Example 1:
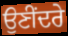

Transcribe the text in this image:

ਉਣੀਂਦਰੇ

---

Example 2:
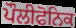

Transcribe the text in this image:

ਪੌਲੀਫੋਨਿਕ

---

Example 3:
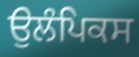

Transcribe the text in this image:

ਉਲੰਪਿਕਸ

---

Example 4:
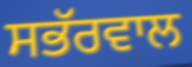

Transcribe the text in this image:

ਸਭੱਰਵਾਲ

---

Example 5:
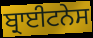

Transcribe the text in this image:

ਬ੍ਰਾਈਟਨੇਸ